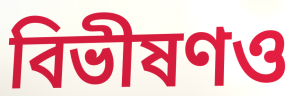
বিভীষণও